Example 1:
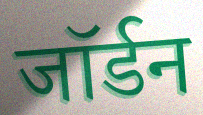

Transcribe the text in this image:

जॉर्डन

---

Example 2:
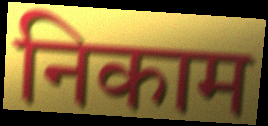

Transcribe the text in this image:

निकाम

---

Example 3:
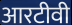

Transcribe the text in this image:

आरटीवी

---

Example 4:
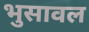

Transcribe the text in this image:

भुसावल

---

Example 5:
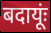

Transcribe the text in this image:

बदायूंः